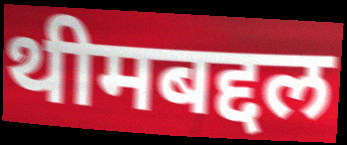
थीमबद्दल